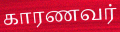
காரணவர்